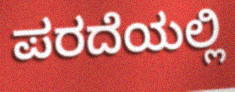
ಪರದೆಯಲ್ಲಿ